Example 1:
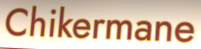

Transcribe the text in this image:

Chikermane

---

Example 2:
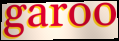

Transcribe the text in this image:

garoo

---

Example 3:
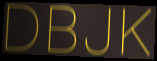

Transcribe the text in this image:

DBJK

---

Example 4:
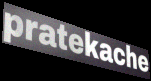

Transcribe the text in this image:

pratekache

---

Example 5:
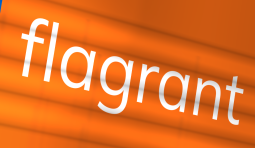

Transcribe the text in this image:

flagrant